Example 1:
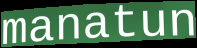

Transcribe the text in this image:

manatun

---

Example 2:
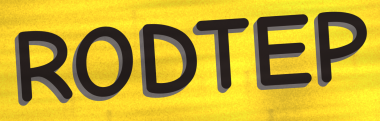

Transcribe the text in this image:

RODTEP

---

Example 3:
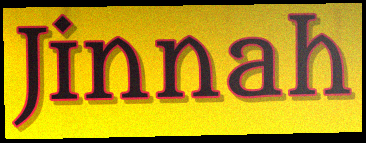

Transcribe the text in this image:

Jinnah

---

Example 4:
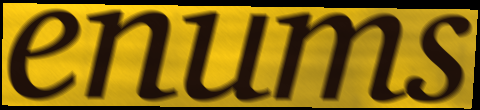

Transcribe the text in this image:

enums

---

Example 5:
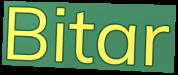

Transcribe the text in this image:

Bitar